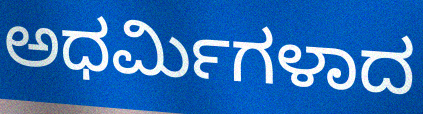
ಅಧರ್ಮಿಗಳಾದ